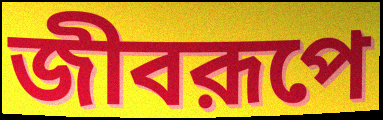
জীবরূপে